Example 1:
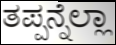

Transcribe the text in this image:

ತಪ್ಪನ್ನೆಲ್ಲಾ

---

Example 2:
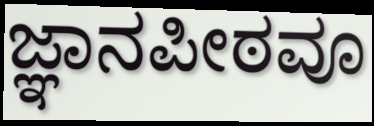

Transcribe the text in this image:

ಜ್ಞಾನಪೀಠವೂ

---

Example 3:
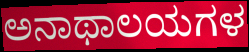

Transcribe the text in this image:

ಅನಾಥಾಲಯಗಳ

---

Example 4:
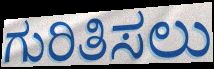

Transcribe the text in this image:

ಗುರಿತಿಸಲು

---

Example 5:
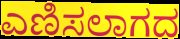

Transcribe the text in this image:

ಎಣಿಸಲಾಗದ